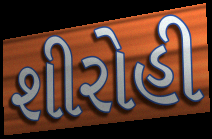
શીરોહી